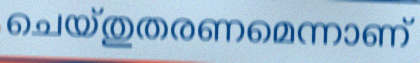
ചെയ്തുതരണമെന്നാണ്